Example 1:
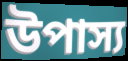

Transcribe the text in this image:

উপাস্য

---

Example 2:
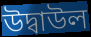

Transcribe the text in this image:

উদ্বাউল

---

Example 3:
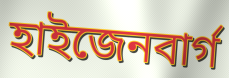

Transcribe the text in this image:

হাইজেনবাৰ্গ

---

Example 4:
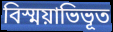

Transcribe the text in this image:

বিস্ময়াভিভূত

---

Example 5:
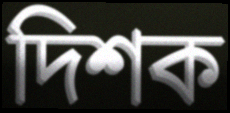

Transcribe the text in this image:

দিশক